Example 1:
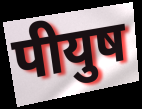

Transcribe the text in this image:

पीयुष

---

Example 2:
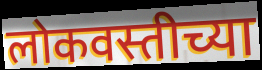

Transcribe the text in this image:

लोकवस्तीच्या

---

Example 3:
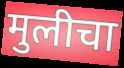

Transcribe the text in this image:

मुलीचा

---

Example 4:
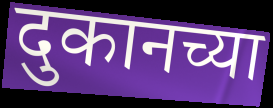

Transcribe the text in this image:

दुकानच्या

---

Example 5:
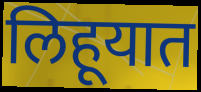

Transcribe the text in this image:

लिहूयात